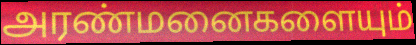
அரண்மனைகளையும்